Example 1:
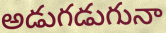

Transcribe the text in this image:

అడుగడుగునా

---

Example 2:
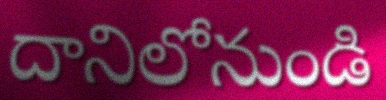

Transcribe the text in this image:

దానిలోనుండి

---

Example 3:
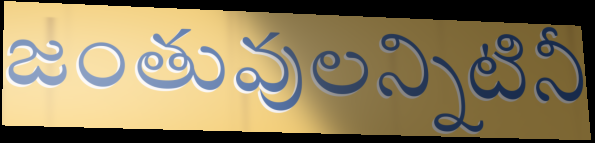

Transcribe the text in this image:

జంతువులన్నిటినీ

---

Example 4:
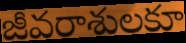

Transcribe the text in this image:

జీవరాశులకూ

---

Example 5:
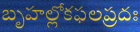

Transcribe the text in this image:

బృహల్లోకఫలప్రదః